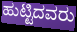
ಹುಟ್ಟಿದವರು